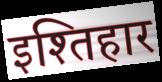
इश्तिहार